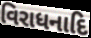
વિરાધનાદિ